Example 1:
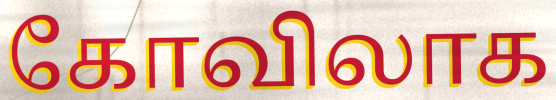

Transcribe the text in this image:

கோவிலாக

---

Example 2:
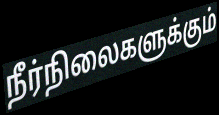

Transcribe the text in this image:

நீர்நிலைகளுக்கும்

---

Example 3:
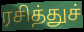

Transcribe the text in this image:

ரசித்துச்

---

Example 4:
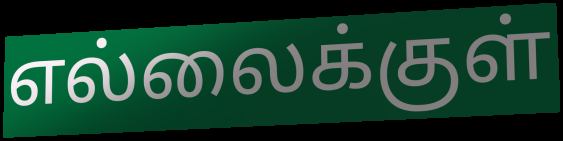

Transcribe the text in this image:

எல்லைக்குள்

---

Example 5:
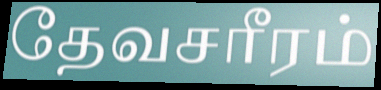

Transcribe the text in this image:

தேவசரீரம்